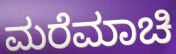
ಮರೆಮಾಚಿ